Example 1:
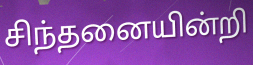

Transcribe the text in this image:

சிந்தனையின்றி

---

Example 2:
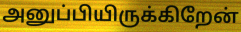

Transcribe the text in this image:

அனுப்பியிருக்கிறேன்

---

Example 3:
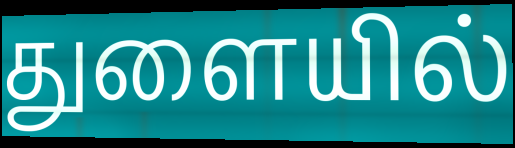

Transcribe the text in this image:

துளையில்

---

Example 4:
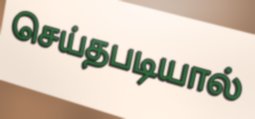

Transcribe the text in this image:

செய்தபடியால்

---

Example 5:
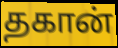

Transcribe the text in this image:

தகான்